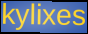
kylixes